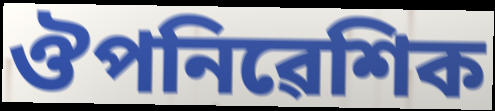
ঔপনিৱেশিক